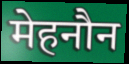
मेहनौन